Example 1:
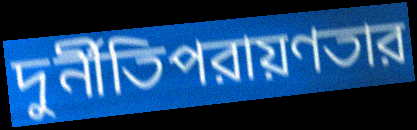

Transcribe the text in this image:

দুর্নীতিপরায়ণতার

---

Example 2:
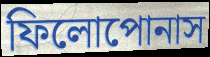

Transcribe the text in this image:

ফিলোপোনাস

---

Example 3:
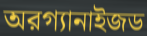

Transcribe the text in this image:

অরগ্যানাইজড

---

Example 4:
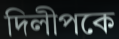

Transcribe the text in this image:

দিলীপকে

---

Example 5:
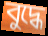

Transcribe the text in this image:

বুদ্ধে